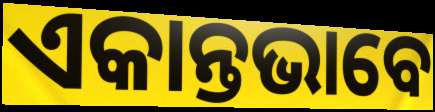
ଏକାନ୍ତଭାବେ